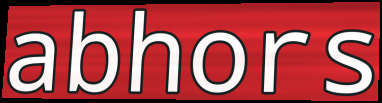
abhors